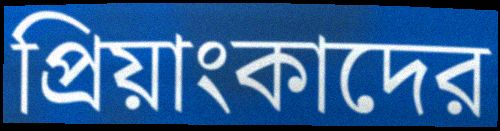
প্রিয়াংকাদের